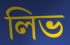
লিভ